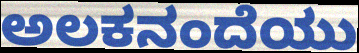
ಅಲಕನಂದೆಯು